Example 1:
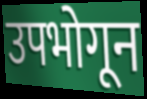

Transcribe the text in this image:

उपभोगून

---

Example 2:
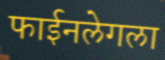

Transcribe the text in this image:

फाईनलेगला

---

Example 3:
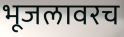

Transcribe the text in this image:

भूजलावरच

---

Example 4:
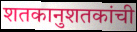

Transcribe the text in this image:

शतकानुशतकांची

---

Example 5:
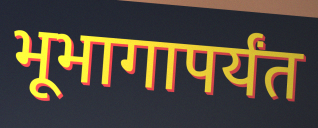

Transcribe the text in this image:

भूभागापर्यंत